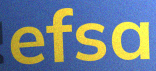
efsa